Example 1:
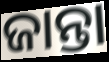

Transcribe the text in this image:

ଜାନ୍ତା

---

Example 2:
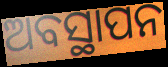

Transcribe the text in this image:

ଅବସ୍ଥାପନ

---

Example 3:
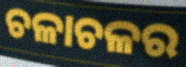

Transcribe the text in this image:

ଚଳାଚଳର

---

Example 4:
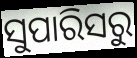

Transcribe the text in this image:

ସୁପାରିସରୁ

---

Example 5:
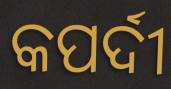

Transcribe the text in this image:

କପର୍ଦୀ